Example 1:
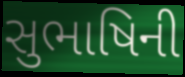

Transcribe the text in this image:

સુભાષિની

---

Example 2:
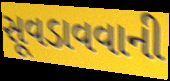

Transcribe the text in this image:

સૂવડાવવાની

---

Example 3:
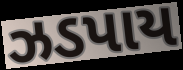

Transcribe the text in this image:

ઝડપાય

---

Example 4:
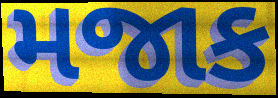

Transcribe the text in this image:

મજાક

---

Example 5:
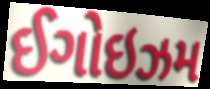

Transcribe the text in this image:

ઈગોઇઝમ